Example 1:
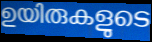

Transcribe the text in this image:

ഉയിരുകളുടെ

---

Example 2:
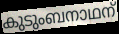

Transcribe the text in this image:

കുടുംബനാഥന്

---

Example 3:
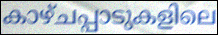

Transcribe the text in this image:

കാഴ്ചപ്പാടുകളിലെ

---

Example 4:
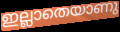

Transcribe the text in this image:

ഇല്ലാതെയാണു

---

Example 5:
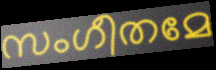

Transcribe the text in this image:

സംഗീതമേ